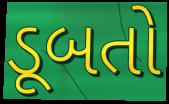
ડૂબતો